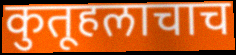
कुतूहलाचाच